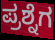
ಪ್ರಶ್ನೆಗ